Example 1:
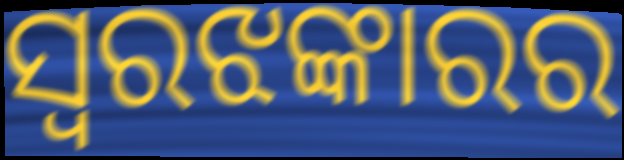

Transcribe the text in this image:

ସ୍ୱରଝଙ୍କାରର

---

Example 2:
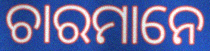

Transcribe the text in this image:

ଚାରମାନେ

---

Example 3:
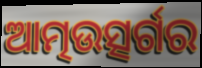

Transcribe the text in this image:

ଆତ୍ମଉତ୍ସର୍ଗର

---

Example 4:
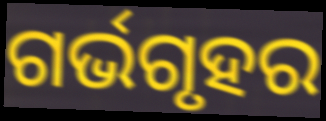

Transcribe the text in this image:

ଗର୍ଭଗୃହର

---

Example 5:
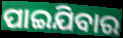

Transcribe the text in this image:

ପାଇଯିବାର